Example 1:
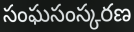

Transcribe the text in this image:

సంఘసంస్కరణ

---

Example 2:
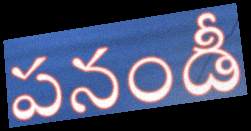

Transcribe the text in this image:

పనండీ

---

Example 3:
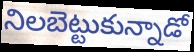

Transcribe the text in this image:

నిలబెట్టుకున్నాడో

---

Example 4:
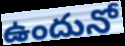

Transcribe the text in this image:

ఉందునో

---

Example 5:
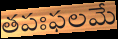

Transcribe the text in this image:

తపఃఫలమే